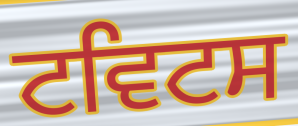
ਟਵਿਟਸ